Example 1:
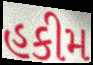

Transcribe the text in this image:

હકીમ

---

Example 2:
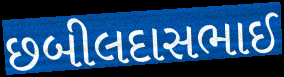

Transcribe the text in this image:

છબીલદાસભાઈ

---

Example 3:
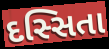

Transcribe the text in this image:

દસ્સિતા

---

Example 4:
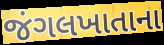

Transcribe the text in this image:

જંગલખાતાના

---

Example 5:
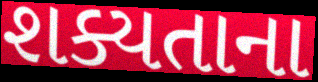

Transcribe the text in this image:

શક્યતાના